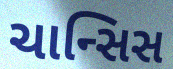
ચાન્સિસ